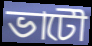
ভাটৌ